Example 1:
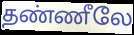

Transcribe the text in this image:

தண்ணீலே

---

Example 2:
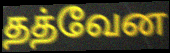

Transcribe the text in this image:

தத்வேன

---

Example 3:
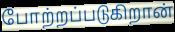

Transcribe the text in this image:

போற்றப்படுகிறான்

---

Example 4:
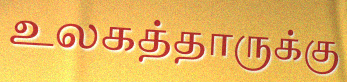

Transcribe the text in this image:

உலகத்தாருக்கு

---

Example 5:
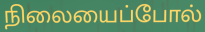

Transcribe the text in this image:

நிலையைப்போல்